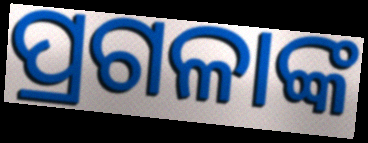
ପ୍ରଗଳାଙ୍କ